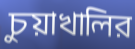
চুয়াখালির